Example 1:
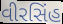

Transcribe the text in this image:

વીરસિંહ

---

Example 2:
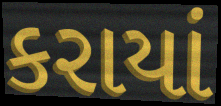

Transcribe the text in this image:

કરાયાં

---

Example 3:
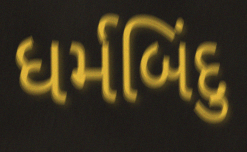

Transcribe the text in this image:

ધર્મબિંદુ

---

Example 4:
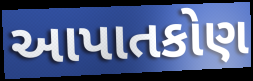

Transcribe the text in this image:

આપાતકોણ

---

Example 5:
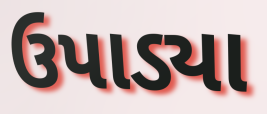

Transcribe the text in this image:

ઉપાડ્યા